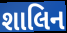
શાલિન